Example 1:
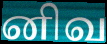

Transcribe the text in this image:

னிவ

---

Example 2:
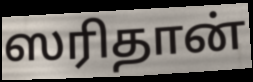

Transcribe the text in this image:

ஸரிதான்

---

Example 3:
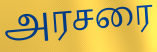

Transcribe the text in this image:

அரசரை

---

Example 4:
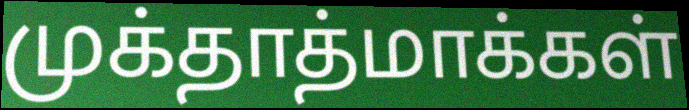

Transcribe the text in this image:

முக்தாத்மாக்கள்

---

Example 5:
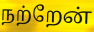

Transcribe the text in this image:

நற்றேன்